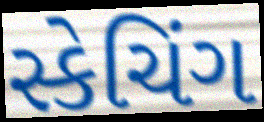
સ્કેચિંગ